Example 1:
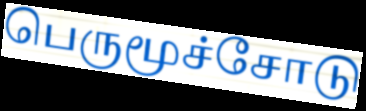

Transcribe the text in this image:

பெருமூச்சோடு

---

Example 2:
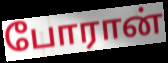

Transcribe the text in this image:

போரான்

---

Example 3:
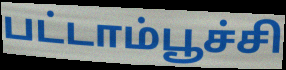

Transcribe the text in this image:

பட்டாம்பூச்சி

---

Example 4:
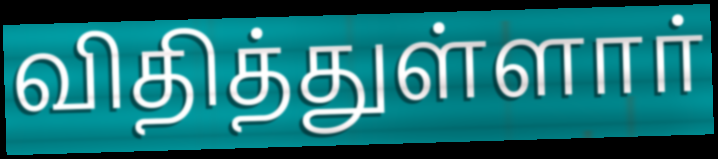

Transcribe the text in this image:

விதித்துள்ளார்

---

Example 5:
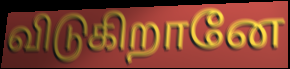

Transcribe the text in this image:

விடுகிறானே